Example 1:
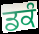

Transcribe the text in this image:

ਡਕੰ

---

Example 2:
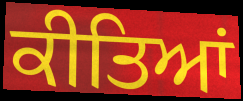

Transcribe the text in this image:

ਕੀਤਿਆਂ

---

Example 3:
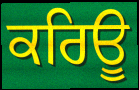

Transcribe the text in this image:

ਕਰਿਊ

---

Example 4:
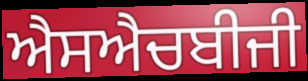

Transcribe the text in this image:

ਐਸਐਚਬੀਜੀ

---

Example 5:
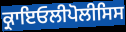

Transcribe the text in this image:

ਕ੍ਰਾਇਓਲੀਪੋਲੀਸਿਸ